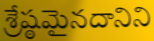
శ్రేష్ఠమైనదానిని